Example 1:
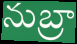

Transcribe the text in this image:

నుబ్రా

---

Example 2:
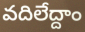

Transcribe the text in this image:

వదిలేద్దాం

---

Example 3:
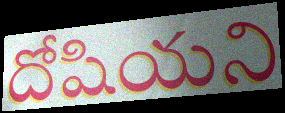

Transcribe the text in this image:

దోషియని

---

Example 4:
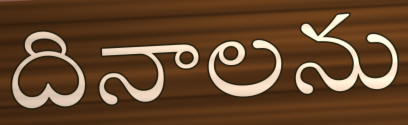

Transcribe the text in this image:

దినాలను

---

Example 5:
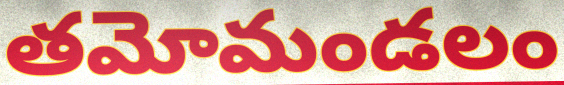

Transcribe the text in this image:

తమోమండలం